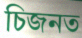
চিজনত